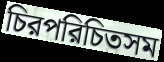
চিরপরিচিতসম